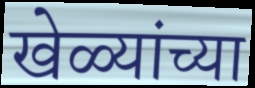
खेळ्यांच्या